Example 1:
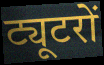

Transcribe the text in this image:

ट्यूटरों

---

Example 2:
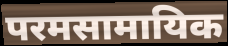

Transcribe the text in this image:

परमसामायिक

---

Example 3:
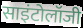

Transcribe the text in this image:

साइंटोलॉजी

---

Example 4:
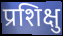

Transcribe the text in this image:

प्रशिक्षु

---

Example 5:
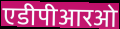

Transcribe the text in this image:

एडीपीआरओ